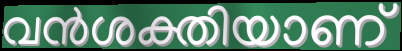
വൻശക്തിയാണ്